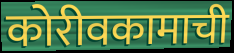
कोरीवकामाची